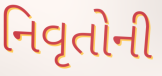
નિવૃતોની